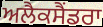
ਅਲੈਕਸੈਂਡਰਾ